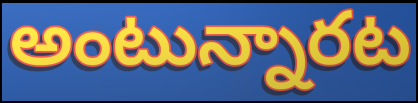
అంటున్నారట